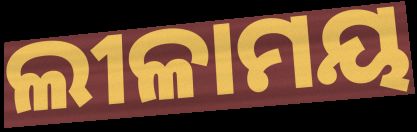
ଲୀଳାମୟ